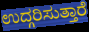
ಉದ್ಗರಿಸುತ್ತಾರೆ